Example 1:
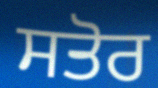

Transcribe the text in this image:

ਸਤੋਰ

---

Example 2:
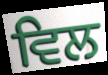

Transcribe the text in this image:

ਵਿਲ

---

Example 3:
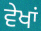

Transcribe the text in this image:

ਵੇਖਾਂ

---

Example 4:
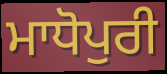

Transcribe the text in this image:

ਮਾਧੋਪੁਰੀ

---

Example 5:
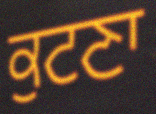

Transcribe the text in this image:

ਕੁਟਣਾ